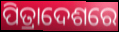
ପିତ୍ରାଦେଶରେ